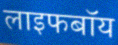
लाइफबॉय